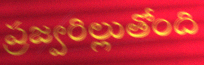
ప్రజ్వరిల్లుతోంది